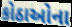
કોઠાઓના